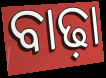
ବାଢ଼ା